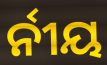
ର୍ନୀୟ